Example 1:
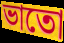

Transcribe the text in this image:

ভাতো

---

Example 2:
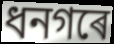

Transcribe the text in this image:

ধনগৰে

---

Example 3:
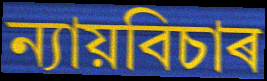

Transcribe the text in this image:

ন্যায়বিচাৰ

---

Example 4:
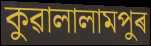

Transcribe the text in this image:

কুৱালালামপুৰ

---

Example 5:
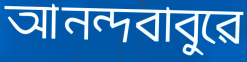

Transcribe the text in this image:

আনন্দবাবুৱে